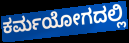
ಕರ್ಮಯೋಗದಲ್ಲಿ